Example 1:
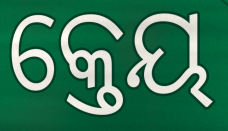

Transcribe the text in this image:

କ୍ତେୟ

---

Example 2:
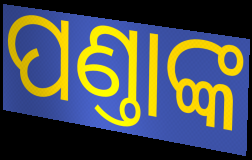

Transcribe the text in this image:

ପଣ୍ତାଙ୍କ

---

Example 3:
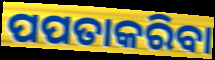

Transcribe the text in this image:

ପପତାକରିବା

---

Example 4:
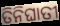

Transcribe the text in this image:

ତିନିଘାତୀ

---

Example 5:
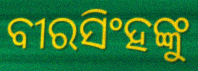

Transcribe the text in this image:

ବୀରସିଂହଙ୍କୁ